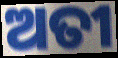
ଅତୀ